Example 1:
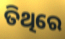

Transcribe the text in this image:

ତିଥିରେ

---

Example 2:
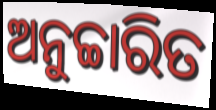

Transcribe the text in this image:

ଅନୁଚ୍ଚାରିତ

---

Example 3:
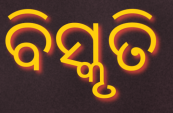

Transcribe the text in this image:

ବିସ୍କୃତି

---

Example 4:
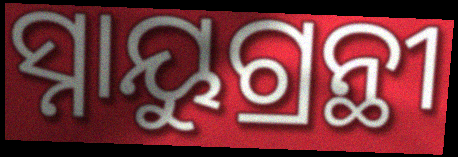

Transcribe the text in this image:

ସ୍ନାୟୁଗ୍ରନ୍ଥୀ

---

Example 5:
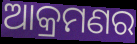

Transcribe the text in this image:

ଆକ୍ରମଣର